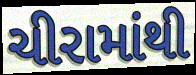
ચીરામાંથી